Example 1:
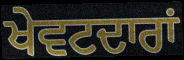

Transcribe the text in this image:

ਖੇਵਟਦਾਰਾਂ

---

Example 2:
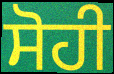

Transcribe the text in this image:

ਸੋਹੀ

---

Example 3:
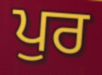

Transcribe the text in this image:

ਪੁਰ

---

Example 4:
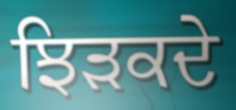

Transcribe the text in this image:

ਝਿੜਕਦੇ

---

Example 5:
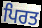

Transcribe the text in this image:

ਪਿਰਤ